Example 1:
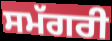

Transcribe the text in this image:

ਸਮੱਗਰੀ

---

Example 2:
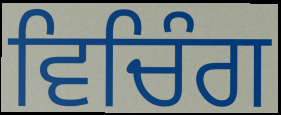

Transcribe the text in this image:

ਵਿਚਿੰਗ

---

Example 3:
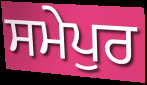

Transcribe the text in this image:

ਸਮੇਪੁਰ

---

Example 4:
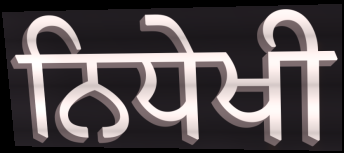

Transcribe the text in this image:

ਨਿਧੇਖੀ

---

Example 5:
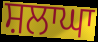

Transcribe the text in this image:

ਸ਼ਲਾਘਾ